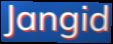
Jangid